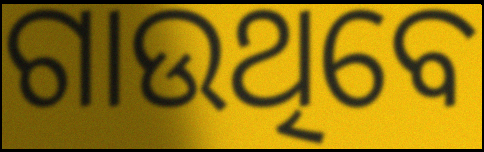
ଗାଉଥିବେ